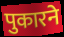
पुकारने